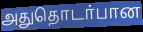
அதுதொடர்பான